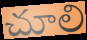
చూలి